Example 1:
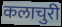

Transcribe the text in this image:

कलाचुरी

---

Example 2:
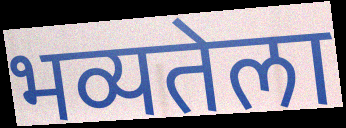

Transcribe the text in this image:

भव्यतेला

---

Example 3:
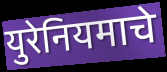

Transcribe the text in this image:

युरेनियमाचे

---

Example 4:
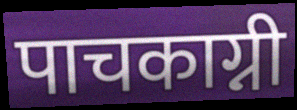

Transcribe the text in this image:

पाचकाग्नी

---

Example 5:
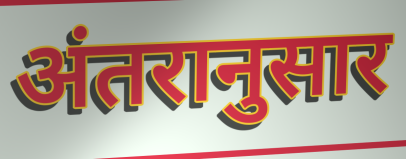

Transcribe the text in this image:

अंतरानुसार